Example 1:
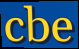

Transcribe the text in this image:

cbe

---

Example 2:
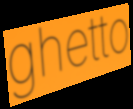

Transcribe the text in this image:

ghetto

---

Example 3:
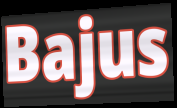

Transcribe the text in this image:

Bajus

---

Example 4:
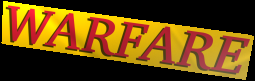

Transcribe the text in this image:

WARFARE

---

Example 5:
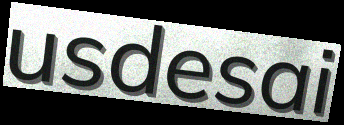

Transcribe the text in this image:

usdesai